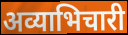
अव्याभिचारी